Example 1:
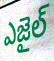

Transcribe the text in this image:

ఎజైల్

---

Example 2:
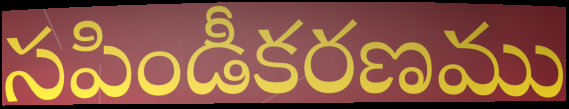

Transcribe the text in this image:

సపిండీకరణము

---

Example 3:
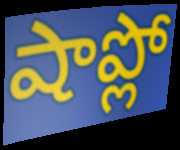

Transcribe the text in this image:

షాప్లో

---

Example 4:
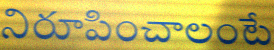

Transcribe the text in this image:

నిరూపించాలంటే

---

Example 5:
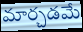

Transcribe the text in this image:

మార్చడమే